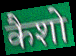
कैशो